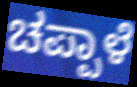
ಚಪ್ಪಾಳೆ